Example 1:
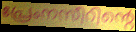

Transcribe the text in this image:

പ്രേംനസീറിന്റെ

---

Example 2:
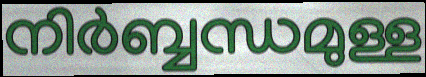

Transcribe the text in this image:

നിർബ്ബന്ധമുള്ള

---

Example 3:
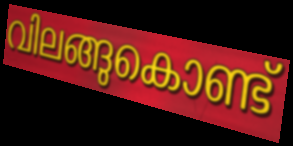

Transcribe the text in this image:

വിലങ്ങുകൊണ്ട്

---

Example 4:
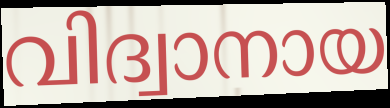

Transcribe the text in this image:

വിദ്വാനായ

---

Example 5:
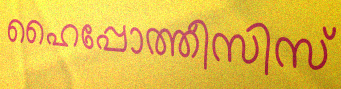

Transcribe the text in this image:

ഹൈപ്പോത്തീസിസ്